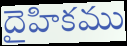
దైహికము